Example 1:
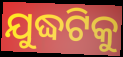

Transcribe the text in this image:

ଯୁଦ୍ଧଟିକୁ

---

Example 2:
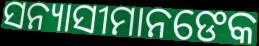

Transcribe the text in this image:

ସନ୍ୟାସୀମାନଙେକ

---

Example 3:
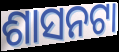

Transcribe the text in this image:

ଶାସନଟା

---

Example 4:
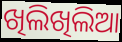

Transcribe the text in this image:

ଖିଲିଖିଲିଆ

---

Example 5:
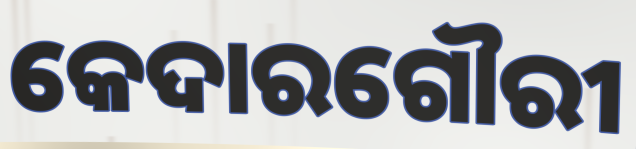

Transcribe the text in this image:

କେଦାରଗୌରୀ